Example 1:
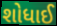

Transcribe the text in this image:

શોધાઈ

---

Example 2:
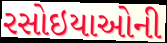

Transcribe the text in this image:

રસોઇયાઓની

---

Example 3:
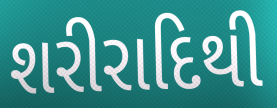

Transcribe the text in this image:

શરીરાદિથી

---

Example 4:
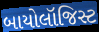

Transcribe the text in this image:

બાયોલૉજિસ્ટ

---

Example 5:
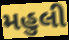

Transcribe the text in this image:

મહુલી